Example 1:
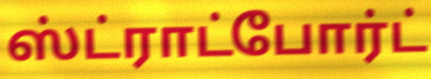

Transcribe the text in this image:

ஸ்ட்ராட்போர்ட்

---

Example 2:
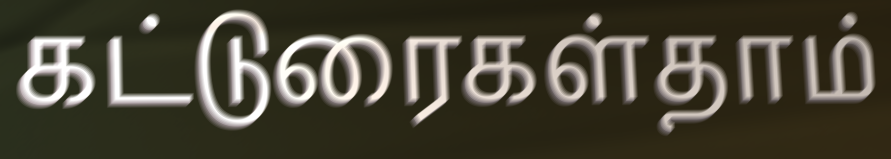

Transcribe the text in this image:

கட்டுரைகள்தாம்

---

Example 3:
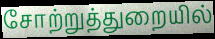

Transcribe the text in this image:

சோற்றுத்துறையில்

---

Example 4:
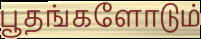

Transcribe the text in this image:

பூதங்களோடும்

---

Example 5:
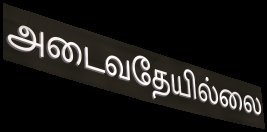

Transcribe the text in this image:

அடைவதேயில்லை